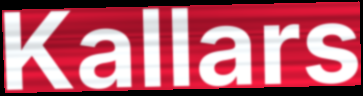
Kallars